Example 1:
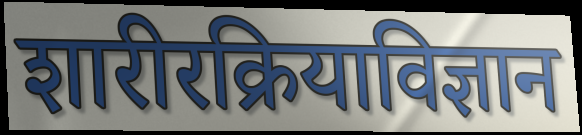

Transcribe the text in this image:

शारीरक्रियाविज्ञान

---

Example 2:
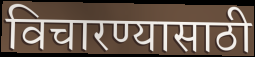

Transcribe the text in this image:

विचारण्यासाठी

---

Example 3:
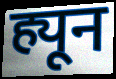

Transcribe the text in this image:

ह्यून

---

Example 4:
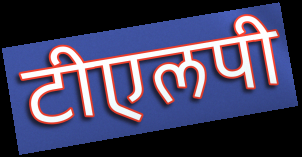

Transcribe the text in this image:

टीएलपी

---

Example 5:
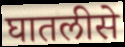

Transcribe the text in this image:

घातलीसे